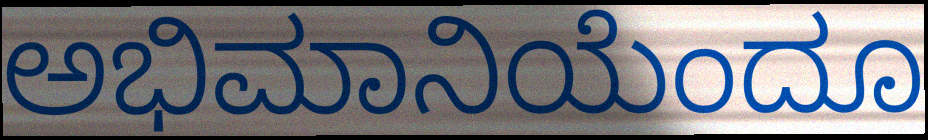
ಅಭಿಮಾನಿಯೆಂದೂ